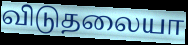
விடுதலையா